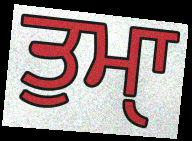
ਤੁਮਾੑ